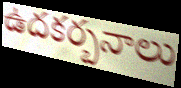
ఉదకర్బనాలు